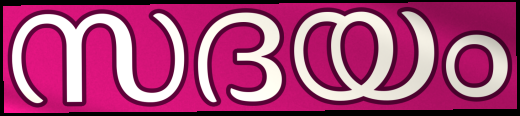
സദയം